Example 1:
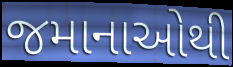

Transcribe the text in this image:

જમાનાઓથી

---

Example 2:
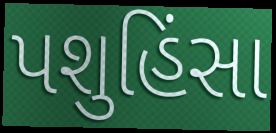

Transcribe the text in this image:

પશુહિંસા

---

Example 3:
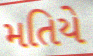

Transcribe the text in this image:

મતિયે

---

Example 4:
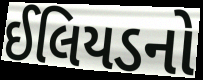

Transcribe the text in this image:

ઈલિયડનો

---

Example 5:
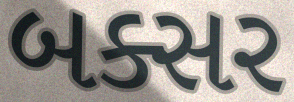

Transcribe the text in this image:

બક્સર